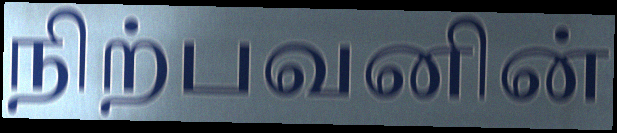
நிற்பவனின்